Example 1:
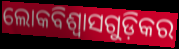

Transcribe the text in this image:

ଲୋକବିଶ୍ଵାସଗୁଡ଼ିକର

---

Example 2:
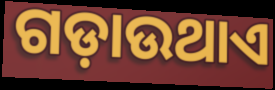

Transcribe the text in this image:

ଗଡ଼ାଉଥାଏ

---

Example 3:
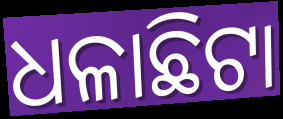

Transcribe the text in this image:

ଧଳାଛିଟା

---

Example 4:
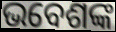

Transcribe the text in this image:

ଭବେଶଙ୍କ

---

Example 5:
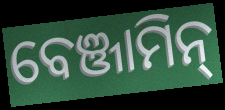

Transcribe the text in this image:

ବେଞ୍ଜାମିନ୍